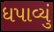
ધપાવ્યું